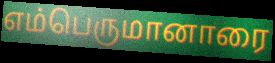
எம்பெருமானாரை